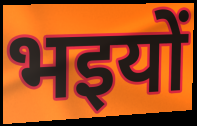
भइयों